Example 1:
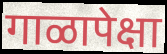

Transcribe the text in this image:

गाळापेक्षा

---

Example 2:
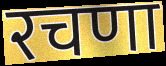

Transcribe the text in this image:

रचणा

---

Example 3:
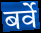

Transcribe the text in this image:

बर्वे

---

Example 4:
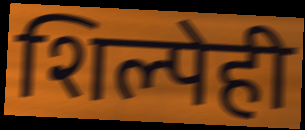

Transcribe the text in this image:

शिल्पेही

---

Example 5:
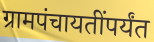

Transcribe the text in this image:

ग्रामपंचायतींपर्यंत